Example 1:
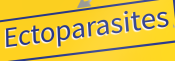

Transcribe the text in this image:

Ectoparasites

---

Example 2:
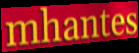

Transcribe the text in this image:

mhantes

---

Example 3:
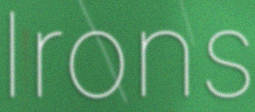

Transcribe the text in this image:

Irons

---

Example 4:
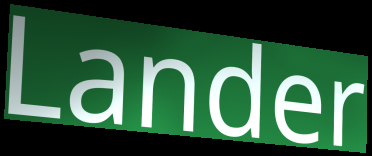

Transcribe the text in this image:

Lander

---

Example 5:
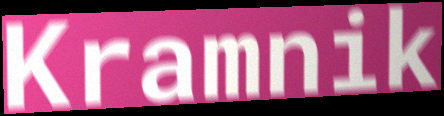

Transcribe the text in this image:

Kramnik